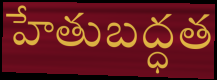
హేతుబద్ధత